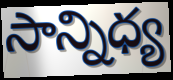
సాన్నిధ్య